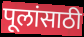
पूलांसाठी